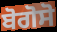
ਬੋਗੋਸੋ